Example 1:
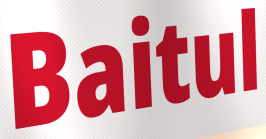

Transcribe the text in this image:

Baitul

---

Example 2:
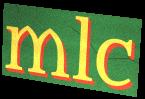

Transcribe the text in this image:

mlc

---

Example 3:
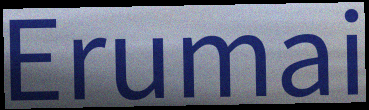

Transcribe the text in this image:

Erumai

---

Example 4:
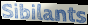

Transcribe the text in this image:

Sibilants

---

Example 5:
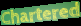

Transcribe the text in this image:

Chartered